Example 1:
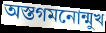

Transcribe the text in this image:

অস্তগমনোন্মুখ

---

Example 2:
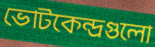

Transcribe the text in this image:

ভোটকেন্দ্রগুলো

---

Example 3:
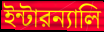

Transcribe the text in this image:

ইন্টারন্যালি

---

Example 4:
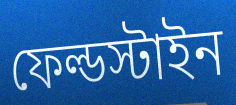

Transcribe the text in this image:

ফেল্ডস্টাইন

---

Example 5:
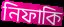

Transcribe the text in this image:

নিফাকি